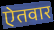
ऐतवार